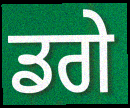
ਡਗੇ